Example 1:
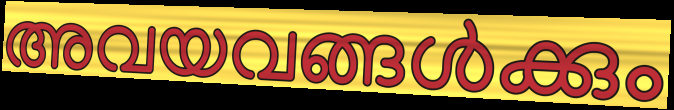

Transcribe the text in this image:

അവയവങ്ങൾക്കും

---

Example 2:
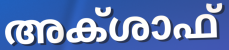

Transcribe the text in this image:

അക്ശാഫ്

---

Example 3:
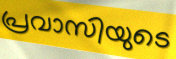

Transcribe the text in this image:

പ്രവാസിയുടെ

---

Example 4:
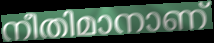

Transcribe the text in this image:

നീതിമാനാണ്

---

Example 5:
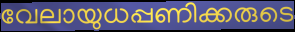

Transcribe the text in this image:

വേലായുധപ്പണിക്കരുടെ